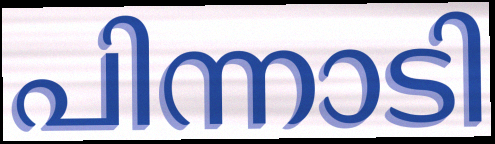
പിന്നാടി